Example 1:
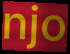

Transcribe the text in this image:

njo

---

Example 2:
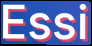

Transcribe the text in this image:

Essi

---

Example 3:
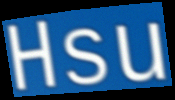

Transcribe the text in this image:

Hsu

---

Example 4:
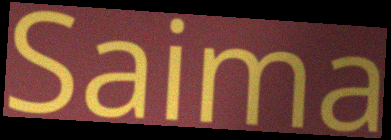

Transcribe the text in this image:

Saima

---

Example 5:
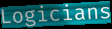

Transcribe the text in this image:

Logicians